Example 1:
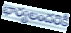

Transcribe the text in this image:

భార్యలందరికీ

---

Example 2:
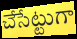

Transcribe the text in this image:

చేసేట్టుగా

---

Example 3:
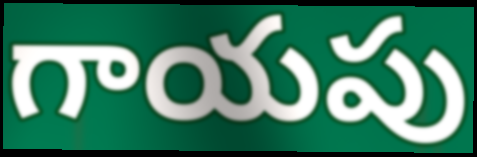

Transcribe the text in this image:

గాయపు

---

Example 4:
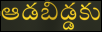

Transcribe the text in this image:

ఆడబిడ్డకు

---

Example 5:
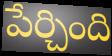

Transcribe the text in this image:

పేర్చింది